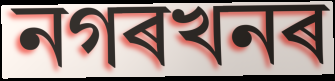
নগৰখনৰ